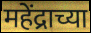
महेंद्राच्या